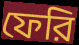
ফেরি